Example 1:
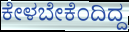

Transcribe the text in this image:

ಕೇಳಬೇಕೆಂದಿದ್ದ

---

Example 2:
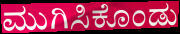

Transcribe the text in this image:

ಮುಗಿಸಿಕೊಂಡು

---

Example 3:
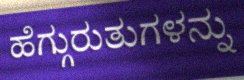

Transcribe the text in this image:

ಹೆಗ್ಗುರುತುಗಳನ್ನು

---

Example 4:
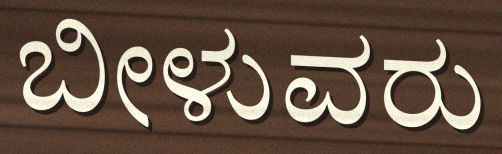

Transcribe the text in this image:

ಬೀಳುವರು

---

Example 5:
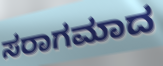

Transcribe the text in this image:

ಸರಾಗಮಾದ